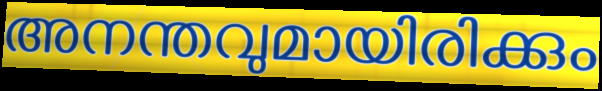
അനന്തവുമായിരിക്കും